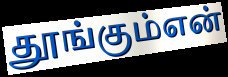
தூங்கும்என்